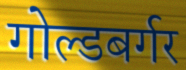
गोल्डबर्गर